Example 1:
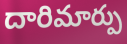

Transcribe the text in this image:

దారిమార్పు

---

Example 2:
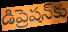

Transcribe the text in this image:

డిప్రెషన్‌కు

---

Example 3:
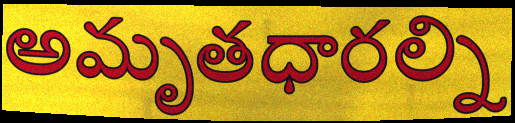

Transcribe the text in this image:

అమృతధారల్ని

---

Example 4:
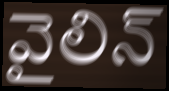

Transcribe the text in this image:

వైలిన్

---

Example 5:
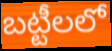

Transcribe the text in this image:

బట్టీలలో